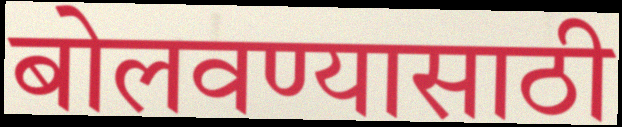
बोलवण्यासाठी